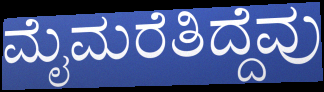
ಮೈಮರೆತಿದ್ದೆವು